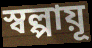
স্বল্পায়ূ